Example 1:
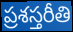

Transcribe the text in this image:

ప్రశస్తరీతి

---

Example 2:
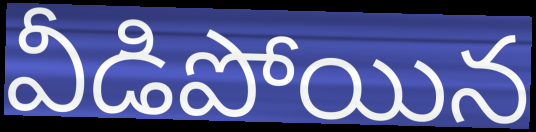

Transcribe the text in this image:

వీడిపోయిన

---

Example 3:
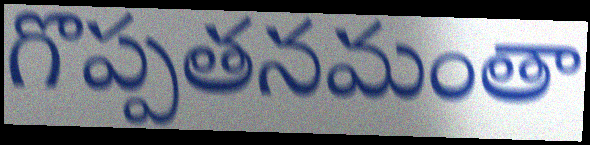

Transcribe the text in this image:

గొప్పతనమంతా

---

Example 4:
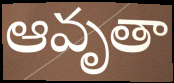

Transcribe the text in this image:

ఆవృతా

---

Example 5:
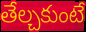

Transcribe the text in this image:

తేల్చకుంటే